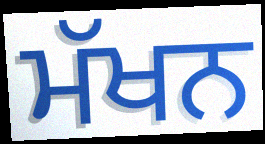
ਮੱਖਨ